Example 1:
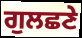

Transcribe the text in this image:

ਗੁਲਛਣੇ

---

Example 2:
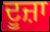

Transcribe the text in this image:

ਦੂਜ਼ਾ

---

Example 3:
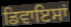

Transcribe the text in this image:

ਡਿਵਾਇਸਾਂ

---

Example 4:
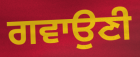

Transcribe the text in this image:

ਗਵਾਉਣੀ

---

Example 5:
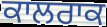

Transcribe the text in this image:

ਕਾਲਰਾਕ